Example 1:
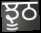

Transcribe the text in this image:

ਝੂਠ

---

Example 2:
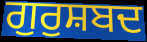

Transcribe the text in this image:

ਗੁਰੁਸ਼ਬਦ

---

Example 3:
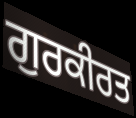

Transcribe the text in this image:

ਗੁਰਕੀਰਤ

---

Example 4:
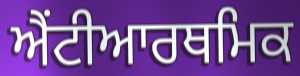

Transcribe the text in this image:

ਐਂਟੀਆਰਥਮਿਕ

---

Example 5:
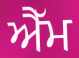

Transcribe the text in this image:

ਐੈੱਮ